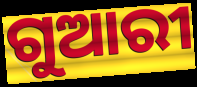
ଗୁଆରୀ